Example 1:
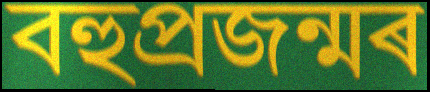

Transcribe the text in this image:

বহুপ্ৰজন্মৰ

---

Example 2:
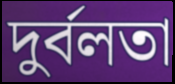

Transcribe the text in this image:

দুৰ্বলতা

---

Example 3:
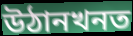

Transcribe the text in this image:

উঠানখনত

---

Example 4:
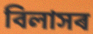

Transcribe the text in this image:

বিলাসৰ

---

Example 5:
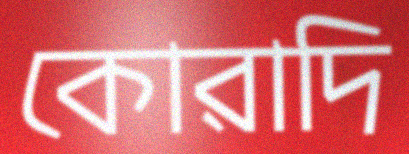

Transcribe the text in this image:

কোৱাদি